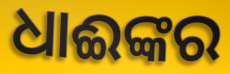
ଧାଈଙ୍କର